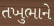
તખુભાને